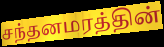
சந்தனமரத்தின்